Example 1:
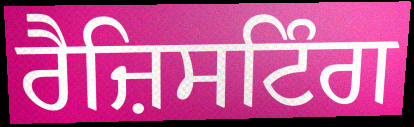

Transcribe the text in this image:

ਰੈਜ਼ਿਸਟਿੰਗ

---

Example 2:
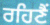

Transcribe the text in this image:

ਰਹਿਣੈਂ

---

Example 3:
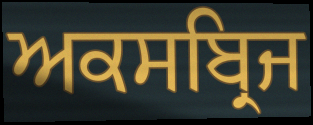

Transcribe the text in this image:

ਅਕਸਬ੍ਰਿਜ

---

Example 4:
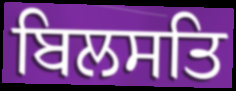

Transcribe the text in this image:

ਬਿਲਸਤਿ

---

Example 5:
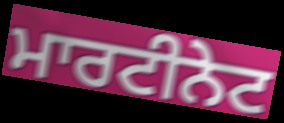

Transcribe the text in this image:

ਮਾਰਟੀਨੇਟ